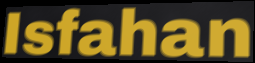
Isfahan